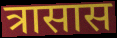
त्रासास